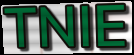
TNIE